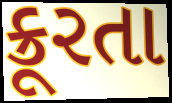
ક્રૂરતા